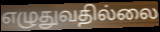
எழுதுவதில்லை